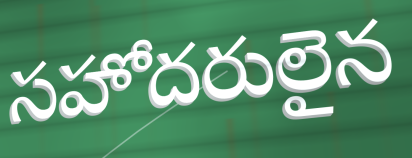
సహోదరులైన